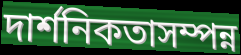
দার্শনিকতাসম্পন্ন